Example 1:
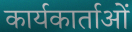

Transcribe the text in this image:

कार्यकार्ताओं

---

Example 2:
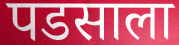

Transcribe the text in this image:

पडसाला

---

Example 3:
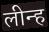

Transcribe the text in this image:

लीन्ह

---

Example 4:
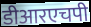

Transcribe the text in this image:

डीआरएचपी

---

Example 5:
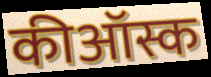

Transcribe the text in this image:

कीऑस्क